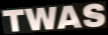
TWAS